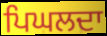
ਪਿਘਲਦਾ